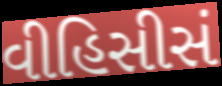
વીહિસીસં